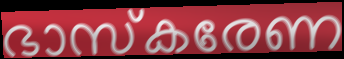
ഭാസ്കരേണ